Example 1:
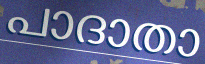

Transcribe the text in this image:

പാദാതാ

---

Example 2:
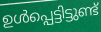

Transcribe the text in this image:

ഉൾപ്പെട്ടിട്ടുണ്ട്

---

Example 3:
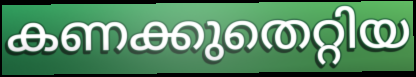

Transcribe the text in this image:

കണക്കുതെറ്റിയ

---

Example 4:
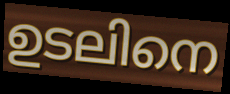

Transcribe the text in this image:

ഉടലിനെ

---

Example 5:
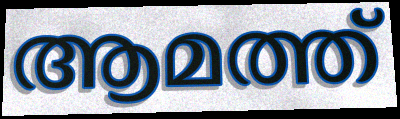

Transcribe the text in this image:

ആമത്ത്